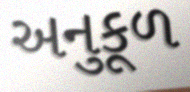
અનુકૂળ